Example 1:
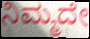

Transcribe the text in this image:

ನಿಮ್ಮದೇ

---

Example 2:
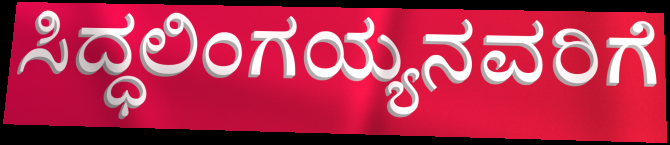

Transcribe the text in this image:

ಸಿದ್ಧಲಿಂಗಯ್ಯನವರಿಗೆ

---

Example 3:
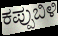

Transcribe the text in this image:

ಕಪ್ಪುಬಿಳಿ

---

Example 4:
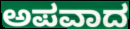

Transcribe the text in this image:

ಅಪವಾದ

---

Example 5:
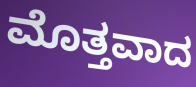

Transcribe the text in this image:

ಮೊತ್ತವಾದ